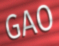
GAO